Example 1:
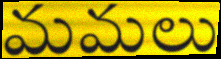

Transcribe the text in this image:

మమలు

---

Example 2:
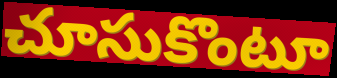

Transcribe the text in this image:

చూసుకొంటూ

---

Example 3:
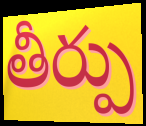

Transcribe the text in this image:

తీర్పు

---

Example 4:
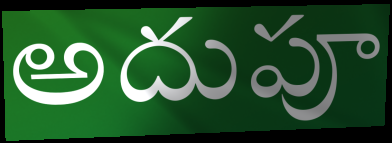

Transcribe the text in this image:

అదుపూ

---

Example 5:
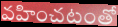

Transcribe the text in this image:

వహించటంతో